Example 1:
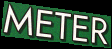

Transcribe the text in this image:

METER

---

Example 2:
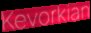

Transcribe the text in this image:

Kevorkian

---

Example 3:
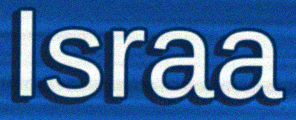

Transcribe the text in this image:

Israa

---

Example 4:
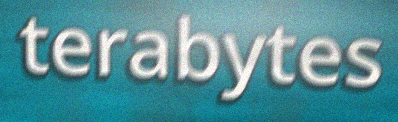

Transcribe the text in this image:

terabytes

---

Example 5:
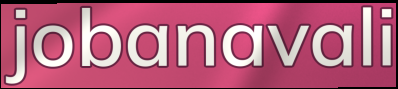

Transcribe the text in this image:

jobanavali